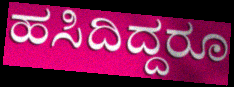
ಹಸಿದಿದ್ದರೂ